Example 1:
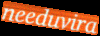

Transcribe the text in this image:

needuvira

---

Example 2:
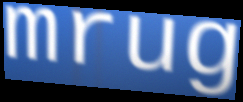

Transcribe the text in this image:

mrug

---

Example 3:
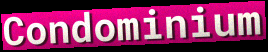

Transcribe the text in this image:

Condominium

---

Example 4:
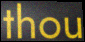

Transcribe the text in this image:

thou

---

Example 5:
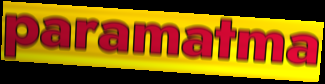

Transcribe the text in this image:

paramatma